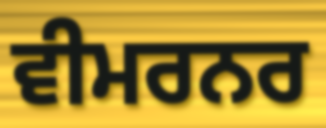
ਵੀਮਰਨਰ